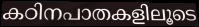
കഠിനപാതകളിലൂടെ